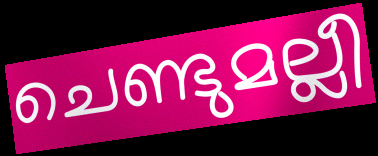
ചെണ്ടുമല്ലീ